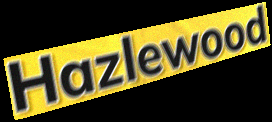
Hazlewood